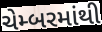
ચેમ્બરમાંથી